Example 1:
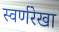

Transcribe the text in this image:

स्वर्णरेखा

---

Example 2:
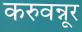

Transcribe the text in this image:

करुवन्नूर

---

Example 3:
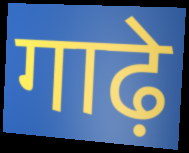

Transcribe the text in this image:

गाढ़े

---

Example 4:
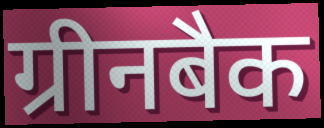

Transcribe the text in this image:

ग्रीनबैक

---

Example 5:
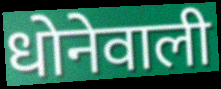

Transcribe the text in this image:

धोनेवाली